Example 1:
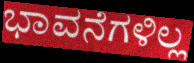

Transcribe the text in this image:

ಭಾವನೆಗಳಿಲ್ಲ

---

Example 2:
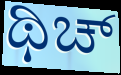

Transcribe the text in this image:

ಥಿಚ್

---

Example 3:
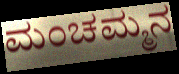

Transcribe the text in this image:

ಮಂಚಮ್ಮನ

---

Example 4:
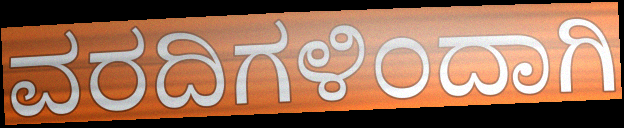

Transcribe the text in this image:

ವರದಿಗಳಿಂದಾಗಿ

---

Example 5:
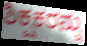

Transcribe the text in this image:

ಶಿಕ್ಷಕರನ್ನು